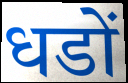
धडों